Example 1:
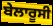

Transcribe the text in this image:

ਬੇਲਾਰੂਸੀ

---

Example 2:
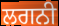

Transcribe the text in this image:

ਲਗਨੀ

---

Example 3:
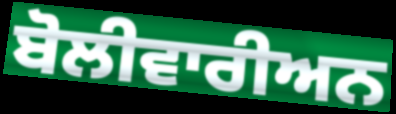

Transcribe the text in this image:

ਬੋਲੀਵਾਰੀਅਨ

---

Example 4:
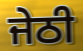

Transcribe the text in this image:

ਜੇਠੀ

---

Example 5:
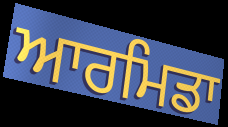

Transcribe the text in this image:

ਆਰਮਿਡਾ